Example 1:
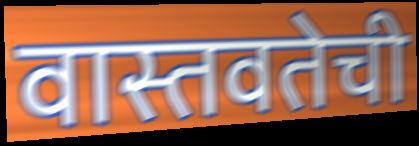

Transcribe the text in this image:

वास्तवतेची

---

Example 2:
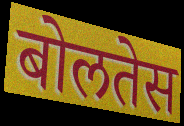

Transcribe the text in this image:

बोलतेस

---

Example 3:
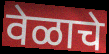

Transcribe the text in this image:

वेळाचे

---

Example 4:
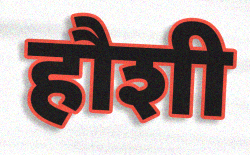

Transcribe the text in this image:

हौशी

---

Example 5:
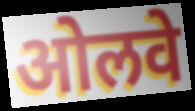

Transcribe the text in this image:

ओलवे